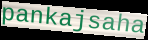
pankajsaha